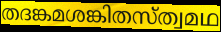
തദങ്കമശങ്കിതസ്ത്വമഥ